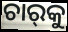
ଚାର୍‌କୁ